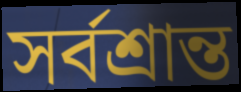
সৰ্বশ্ৰান্ত